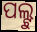
ପଲ୍ଟୁ